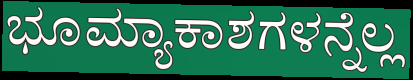
ಭೂಮ್ಯಾಕಾಶಗಳನ್ನೆಲ್ಲ